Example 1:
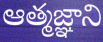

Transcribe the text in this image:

ఆత్మజ్ఞాని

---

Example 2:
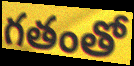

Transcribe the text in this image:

గతంతో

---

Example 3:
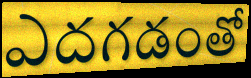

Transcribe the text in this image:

ఎదగడంతో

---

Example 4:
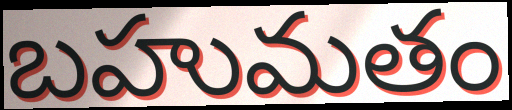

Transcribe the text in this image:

బహుమతం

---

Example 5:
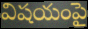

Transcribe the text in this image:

విషయంపై